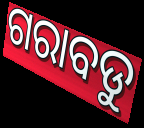
ଗରାବଡୁ